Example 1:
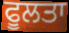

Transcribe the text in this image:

ਫੂਲਤਾ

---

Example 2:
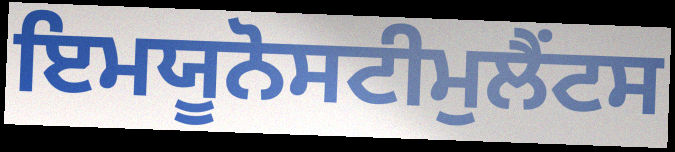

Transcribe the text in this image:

ਇਮਯੂਨੋਸਟੀਮੁਲੈਂਟਸ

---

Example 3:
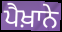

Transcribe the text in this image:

ਪੈਖ਼ਾਨੇ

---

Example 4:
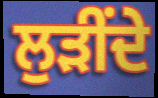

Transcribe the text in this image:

ਲੁੜੀਂਦੇ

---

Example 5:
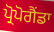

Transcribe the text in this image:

ਪ੍ਰੋਪੋਗੈਂਡਾ